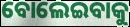
ବୋଲେଇବାକୁ